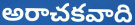
అరాచకవాది